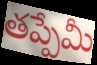
తప్పేమీ